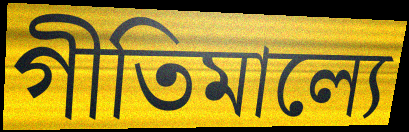
গীতিমাল্যে